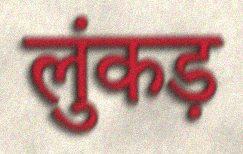
लुंकड़